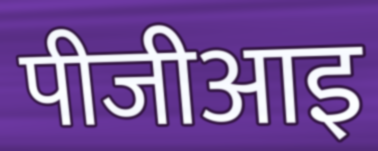
पीजीआइ